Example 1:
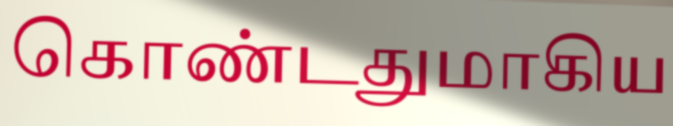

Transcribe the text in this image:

கொண்டதுமாகிய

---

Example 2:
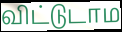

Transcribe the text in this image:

விட்டுடாம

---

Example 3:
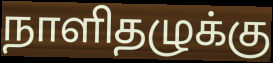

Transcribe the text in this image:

நாளிதழுக்கு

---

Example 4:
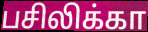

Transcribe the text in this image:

பசிலிக்கா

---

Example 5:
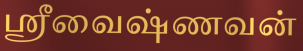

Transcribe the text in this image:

ஸ்ரீவைஷ்ணவன்